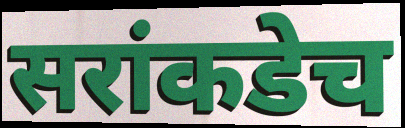
सरांकडेच